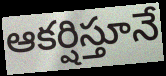
ఆకర్షిస్తూనే